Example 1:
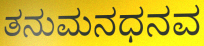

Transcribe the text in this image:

ತನುಮನಧನವ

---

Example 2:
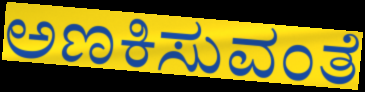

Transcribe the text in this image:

ಅಣಕಿಸುವಂತೆ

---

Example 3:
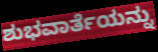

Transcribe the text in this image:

ಶುಭವಾರ್ತೆಯನ್ನು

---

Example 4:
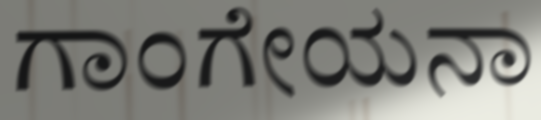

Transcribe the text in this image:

ಗಾಂಗೇಯನಾ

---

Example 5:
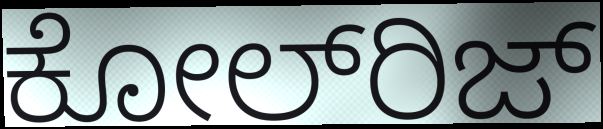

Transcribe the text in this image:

ಕೋಲ್‍ರಿಜ್